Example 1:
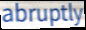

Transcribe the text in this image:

abruptly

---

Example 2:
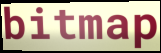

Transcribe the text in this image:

bitmap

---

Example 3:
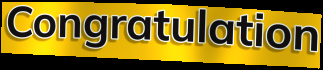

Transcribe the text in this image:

Congratulation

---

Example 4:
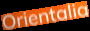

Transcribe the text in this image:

Orientalia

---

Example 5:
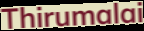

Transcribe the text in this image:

Thirumalai